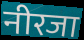
नीरजा